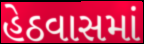
હેઠવાસમાં